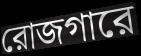
রোজগারে